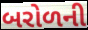
બરોળની